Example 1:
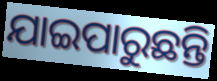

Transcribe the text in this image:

ଯାଇପାରୁଛନ୍ତି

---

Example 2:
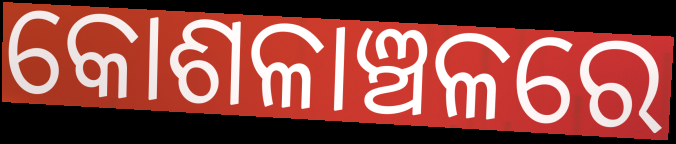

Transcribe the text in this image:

କୋଶଳାଞ୍ଚଳରେ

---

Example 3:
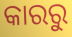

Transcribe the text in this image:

କାରରୁ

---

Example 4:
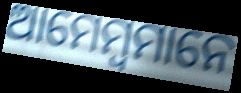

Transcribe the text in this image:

ଆମେମ୍ବମାନେ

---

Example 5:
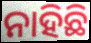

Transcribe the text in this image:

ନାହିଛି